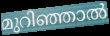
മുറിഞ്ഞാൽ